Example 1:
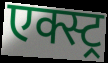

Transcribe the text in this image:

एक्स्ट्र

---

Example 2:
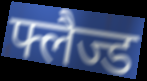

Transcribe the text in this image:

फ्लैज्ड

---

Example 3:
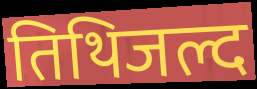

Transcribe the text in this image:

तिथिजल्द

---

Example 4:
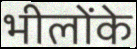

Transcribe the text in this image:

भीलोंके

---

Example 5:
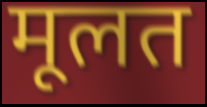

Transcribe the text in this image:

मूलत